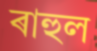
ৰাহুল